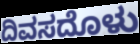
ದಿವಸದೊಳು